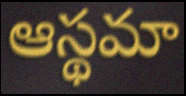
ఆస్థమా